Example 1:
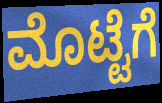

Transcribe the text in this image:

ಮೊಟ್ಟೆಗೆ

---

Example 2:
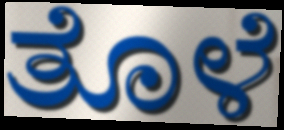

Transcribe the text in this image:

ತೊಳೆ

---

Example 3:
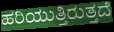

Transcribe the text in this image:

ಹರಿಯುತ್ತಿರುತ್ತದೆ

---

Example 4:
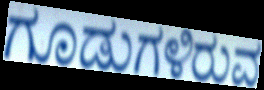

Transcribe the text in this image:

ಗೂಡುಗಳಿರುವ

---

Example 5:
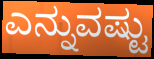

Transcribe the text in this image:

ಎನ್ನುವಷ್ಟು